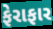
ફેરાફાર